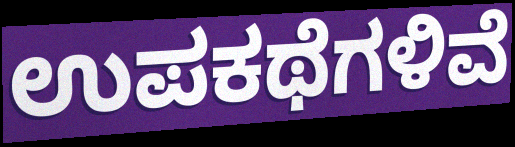
ಉಪಕಥೆಗಳಿವೆ